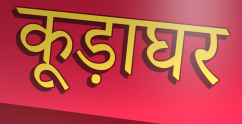
कूड़ाघर